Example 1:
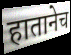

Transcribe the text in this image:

हातानेच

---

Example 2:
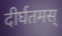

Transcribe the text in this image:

दीर्घतमस्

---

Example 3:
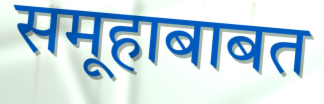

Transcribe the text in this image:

समूहाबाबत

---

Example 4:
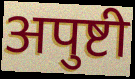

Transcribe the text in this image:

अपुष्टी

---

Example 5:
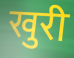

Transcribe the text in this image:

खुरी